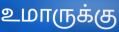
உமாருக்கு